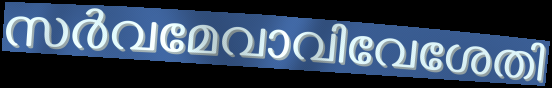
സർവമേവാവിവേശേതി